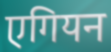
एगियन